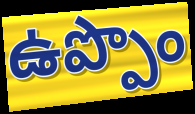
ఉప్పొం